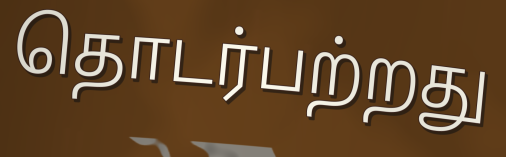
தொடர்பற்றது